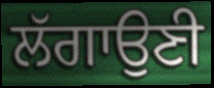
ਲੱਗਾਉਣੀ